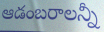
ఆడంబరాలన్నీ